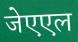
जेएएल